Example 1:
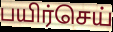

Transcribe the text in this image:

பயிர்செய்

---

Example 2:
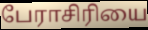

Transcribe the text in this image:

பேராசிரியை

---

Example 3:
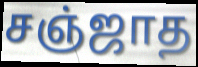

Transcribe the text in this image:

சஞ்ஜாத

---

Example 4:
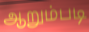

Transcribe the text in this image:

ஆறும்படி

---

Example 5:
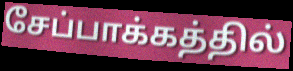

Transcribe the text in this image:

சேப்பாக்கத்தில்